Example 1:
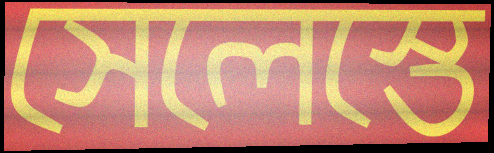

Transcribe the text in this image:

সেলেস্তে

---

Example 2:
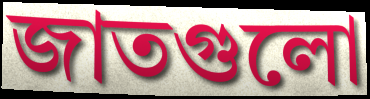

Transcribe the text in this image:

জাতগুলো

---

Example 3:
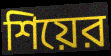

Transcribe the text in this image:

শিয়ের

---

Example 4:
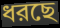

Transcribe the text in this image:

ধরছে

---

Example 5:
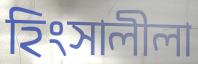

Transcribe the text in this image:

হিংসালীলা